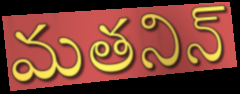
మతనిన్